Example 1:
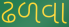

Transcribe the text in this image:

ઢળવા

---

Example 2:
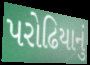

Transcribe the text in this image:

પરોઢિયાનું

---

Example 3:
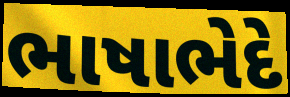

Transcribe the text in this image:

ભાષાભેદે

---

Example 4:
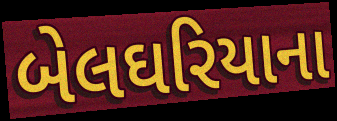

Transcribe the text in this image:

બેલઘરિયાના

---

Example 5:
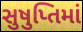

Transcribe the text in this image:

સુષુપ્તિમાં